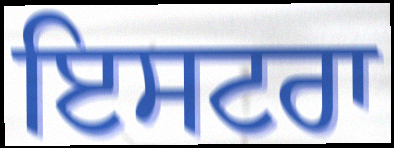
ਇਸਟਰਾ